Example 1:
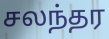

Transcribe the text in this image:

சலந்தர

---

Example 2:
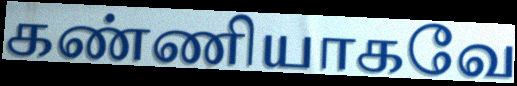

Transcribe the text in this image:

கண்ணியாகவே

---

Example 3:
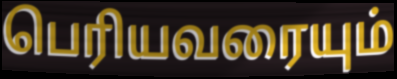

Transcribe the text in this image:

பெரியவரையும்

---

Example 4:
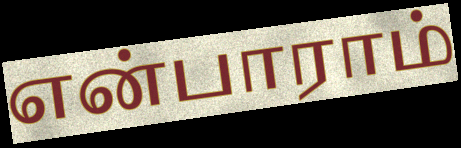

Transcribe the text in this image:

என்பாராம்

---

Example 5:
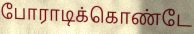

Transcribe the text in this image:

போராடிக்கொண்டே